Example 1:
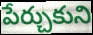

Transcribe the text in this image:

పేర్చుకుని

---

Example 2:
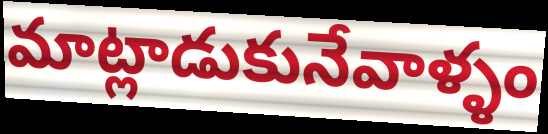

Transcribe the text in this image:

మాట్లాడుకునేవాళ్ళం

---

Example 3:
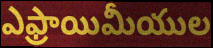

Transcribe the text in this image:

ఎఫ్రాయిమీయుల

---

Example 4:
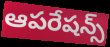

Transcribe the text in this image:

ఆపరేషన్స్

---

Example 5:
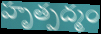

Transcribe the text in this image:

హృత్పద్మం